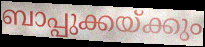
ബാപ്പുക്കയ്ക്കും